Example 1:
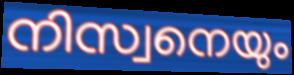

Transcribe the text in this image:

നിസ്വനെയും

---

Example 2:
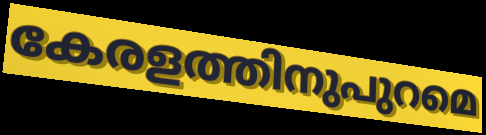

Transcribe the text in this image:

കേരളത്തിനുപുറമെ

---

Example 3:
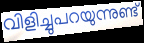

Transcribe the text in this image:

വിളിച്ചുപറയുന്നുണ്ട്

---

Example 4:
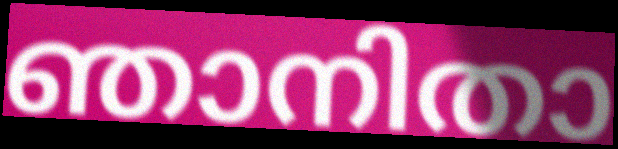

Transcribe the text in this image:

ഞാനിതാ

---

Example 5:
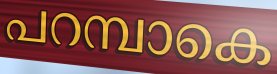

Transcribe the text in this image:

പറമ്പാകെ